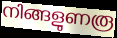
നിങ്ങളുണരൂ